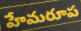
హేమరూప